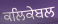
ਕਲਿਕੇਬਲ